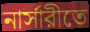
নার্সারীতে